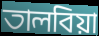
তালবিয়া